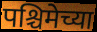
पश्चिमेच्या